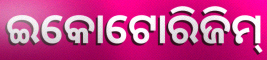
ଇକୋଟୋରିଜିମ୍